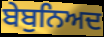
ਬੇਬੁਨਿਅਦ